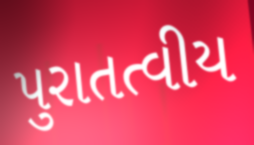
પુરાતત્વીય